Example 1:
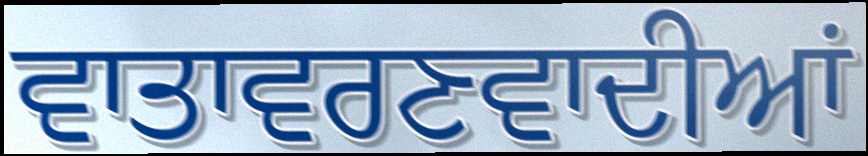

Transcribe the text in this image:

ਵਾਤਾਵਰਣਵਾਦੀਆਂ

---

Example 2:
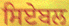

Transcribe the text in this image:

ਸਿਏਬਲ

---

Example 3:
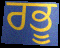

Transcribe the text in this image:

ਰਭੂ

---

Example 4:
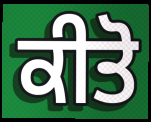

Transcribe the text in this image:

ਕੀਤੋ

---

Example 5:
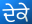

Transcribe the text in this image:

ਦੇਕੇ